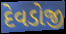
દેવડોજી